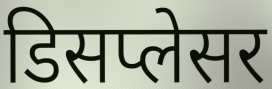
डिसप्लेसर